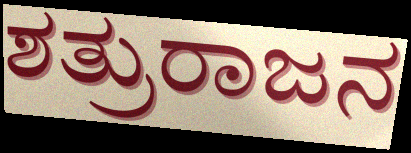
ಶತ್ರುರಾಜನ